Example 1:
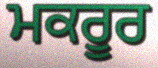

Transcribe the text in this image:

ਮਕਰੂਰ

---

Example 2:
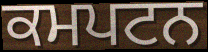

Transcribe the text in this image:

ਕਮਪਟਨ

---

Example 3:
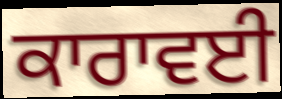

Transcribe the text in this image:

ਕਾਰਾਵਈ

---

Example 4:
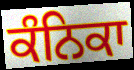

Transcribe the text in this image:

ਕੰਨਿਕਾ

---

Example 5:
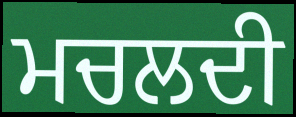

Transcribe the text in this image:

ਮਚਲਦੀ